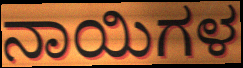
ನಾಯಿಗಳ